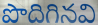
పొదిగినవి